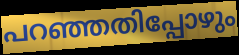
പറഞ്ഞതിപ്പോഴും